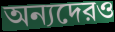
অন্যদেরও